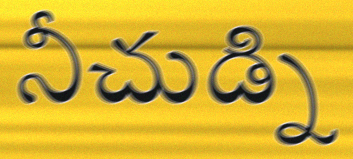
నీచుడ్ని